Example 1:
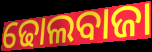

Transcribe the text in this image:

ଢୋଲବାଜା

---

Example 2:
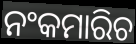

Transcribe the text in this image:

ନଂକମାରିଚ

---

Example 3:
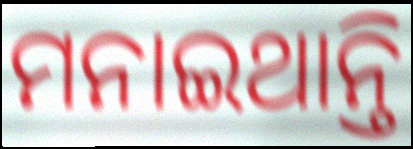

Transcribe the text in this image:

ମନାଇଥାନ୍ତି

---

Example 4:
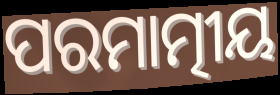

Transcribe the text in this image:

ପରମାତ୍ମୀୟ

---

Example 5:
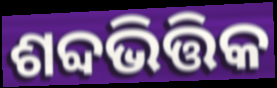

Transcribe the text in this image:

ଶବ୍ଦଭିତ୍ତିକ